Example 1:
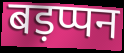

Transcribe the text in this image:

बड़प्पन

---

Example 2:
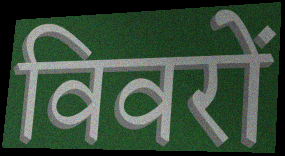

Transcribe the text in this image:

विवरों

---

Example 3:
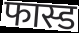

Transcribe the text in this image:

फास्ड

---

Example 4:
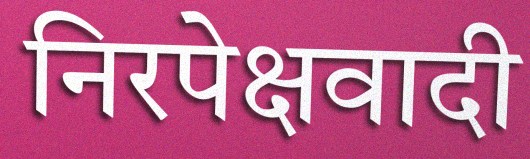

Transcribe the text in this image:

निरपेक्षवादी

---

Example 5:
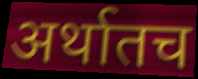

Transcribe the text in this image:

अर्थातच